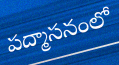
పద్మాసనంలో